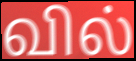
வில்